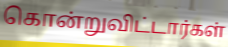
கொன்றுவிட்டார்கள்